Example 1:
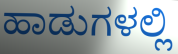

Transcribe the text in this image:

ಹಾಡುಗಳಲ್ಲಿ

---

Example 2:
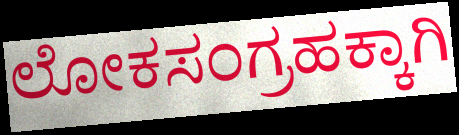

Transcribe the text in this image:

ಲೋಕಸಂಗ್ರಹಕ್ಕಾಗಿ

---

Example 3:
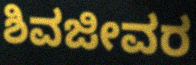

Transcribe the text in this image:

ಶಿವಜೀವರ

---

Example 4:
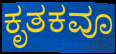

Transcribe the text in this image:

ಕೃತಕವೂ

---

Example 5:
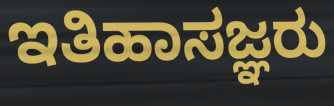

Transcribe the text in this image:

ಇತಿಹಾಸಜ್ಞರು